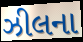
ઝીલના